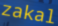
zakal